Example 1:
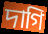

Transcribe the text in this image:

দাগি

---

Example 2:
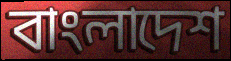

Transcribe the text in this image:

বাংলাদেশ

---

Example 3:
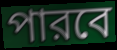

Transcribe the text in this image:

পারবে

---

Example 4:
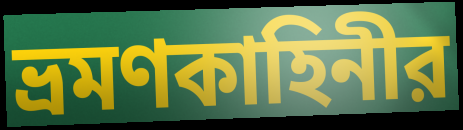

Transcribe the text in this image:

ভ্রমণকাহিনীর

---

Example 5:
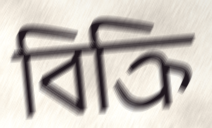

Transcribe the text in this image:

বিক্রি